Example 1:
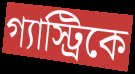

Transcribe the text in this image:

গ্যাস্ট্রিকে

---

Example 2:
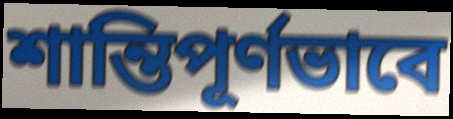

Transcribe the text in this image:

শান্তিপূর্ণভাবে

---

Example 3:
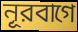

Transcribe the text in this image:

নূরবাগে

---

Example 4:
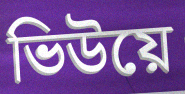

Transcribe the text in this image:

ভিউয়ে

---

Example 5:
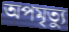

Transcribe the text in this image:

অপমৃত্যু